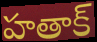
హతాక్